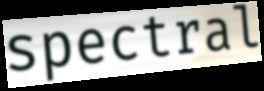
spectral